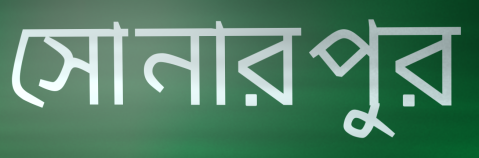
সোনারপুর